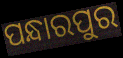
ପନ୍ଧାରପୁର